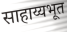
साहाय्यभूत